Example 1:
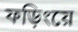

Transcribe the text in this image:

ফড়িংয়ে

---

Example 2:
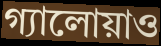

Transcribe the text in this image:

গ্যালোয়াও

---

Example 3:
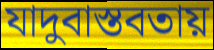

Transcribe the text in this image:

যাদুবাস্তবতায়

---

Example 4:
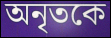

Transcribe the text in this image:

অনৃতকে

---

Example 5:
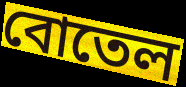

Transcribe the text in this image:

বোতেল